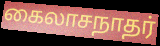
கைலாசநாதர்